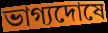
ভাগ্যদোষে